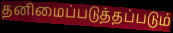
தனிமைப்படுத்தப்படும்